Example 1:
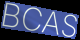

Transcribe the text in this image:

BCAS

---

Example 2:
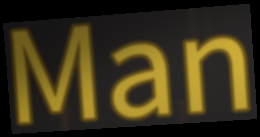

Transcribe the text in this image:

Man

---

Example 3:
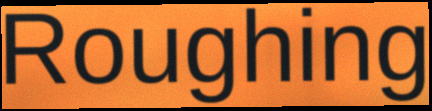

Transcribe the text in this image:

Roughing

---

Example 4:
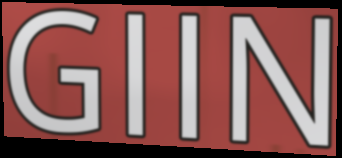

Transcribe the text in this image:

GIIN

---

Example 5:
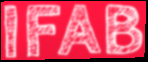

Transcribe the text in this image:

IFAB